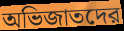
অভিজাতদের